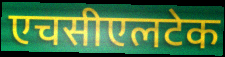
एचसीएलटेक